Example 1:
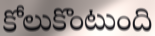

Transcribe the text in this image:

కోలుకొంటుంది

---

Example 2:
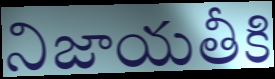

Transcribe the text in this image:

నిజాయతీకి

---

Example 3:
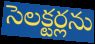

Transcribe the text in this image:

సెలక్టర్లను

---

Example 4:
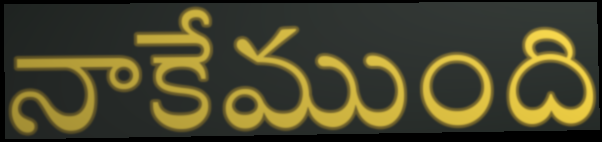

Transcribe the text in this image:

నాకేముంది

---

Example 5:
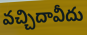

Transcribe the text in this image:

వచ్చిదావీదు